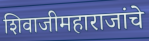
शिवाजीमहाराजांचे